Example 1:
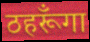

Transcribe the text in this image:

ठहरूँगा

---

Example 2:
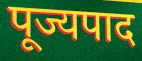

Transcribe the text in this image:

पूज्यपाद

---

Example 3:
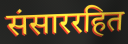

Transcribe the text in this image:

संसाररहित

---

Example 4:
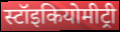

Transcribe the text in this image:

स्टॉइकियोमीट्री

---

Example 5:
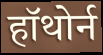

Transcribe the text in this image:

हॉथोर्न